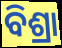
ବିଶ୍ରା